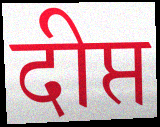
दीप्त